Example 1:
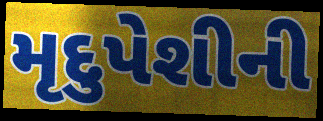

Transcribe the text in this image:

મૃદુપેશીની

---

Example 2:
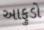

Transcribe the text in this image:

આફુડો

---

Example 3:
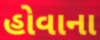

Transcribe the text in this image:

હોવાના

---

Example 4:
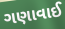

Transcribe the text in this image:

ગણાવાઈ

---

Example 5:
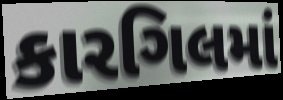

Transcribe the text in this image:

કારગિલમાં